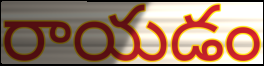
రాయడం